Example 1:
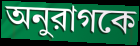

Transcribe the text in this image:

অনুরাগকে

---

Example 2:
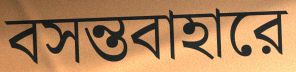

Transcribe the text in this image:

বসন্তবাহারে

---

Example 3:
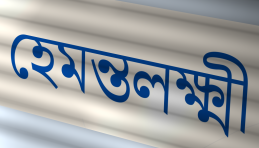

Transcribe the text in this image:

হেমন্তলক্ষ্মী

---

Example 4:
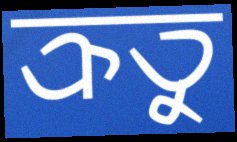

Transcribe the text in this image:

ক্রতু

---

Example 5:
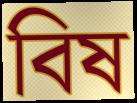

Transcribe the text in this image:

বিষ